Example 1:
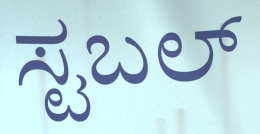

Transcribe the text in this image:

ಸ್ಟಬಲ್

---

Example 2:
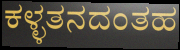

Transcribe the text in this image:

ಕಳ್ಳತನದಂತಹ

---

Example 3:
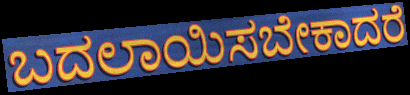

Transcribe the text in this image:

ಬದಲಾಯಿಸಬೇಕಾದರೆ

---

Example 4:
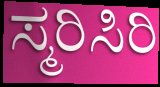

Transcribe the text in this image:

ಸ್ಮರಿಸಿರಿ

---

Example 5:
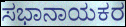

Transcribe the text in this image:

ಸಭಾನಾಯಕರ